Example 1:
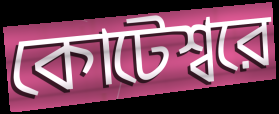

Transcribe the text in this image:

কোটেশ্বরে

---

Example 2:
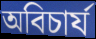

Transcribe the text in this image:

অবিচার্য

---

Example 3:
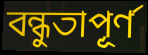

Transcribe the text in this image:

বন্ধুতাপূর্ণ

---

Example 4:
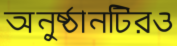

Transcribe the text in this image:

অনুষ্ঠানটিরও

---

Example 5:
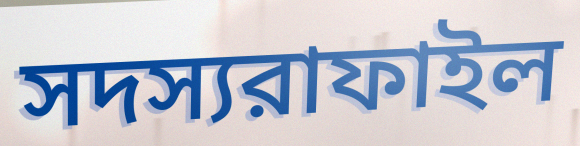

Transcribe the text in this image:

সদস্যরাফাইল